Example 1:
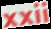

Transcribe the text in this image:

xxii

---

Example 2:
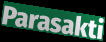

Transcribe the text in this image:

Parasakti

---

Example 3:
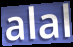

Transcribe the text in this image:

alal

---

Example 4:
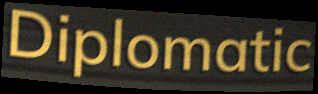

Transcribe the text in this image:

Diplomatic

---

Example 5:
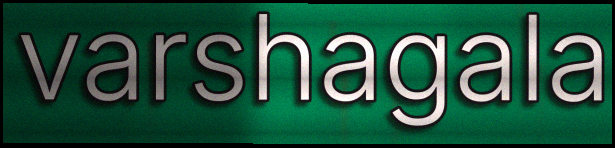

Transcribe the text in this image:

varshagala